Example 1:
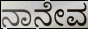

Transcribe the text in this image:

ನಾನೇವ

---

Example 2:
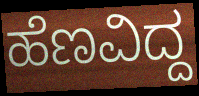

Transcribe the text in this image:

ಹೆಣವಿದ್ದ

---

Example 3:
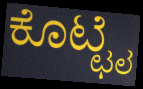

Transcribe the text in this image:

ಕೊಟ್ಟೈ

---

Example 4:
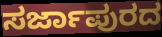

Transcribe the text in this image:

ಸರ್ಜಾಪುರದ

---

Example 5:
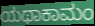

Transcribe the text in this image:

ಯಥಾಕಾಮಂ